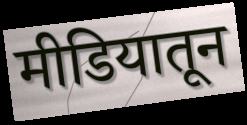
मीडियातून